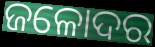
ଜଳୋଦର